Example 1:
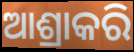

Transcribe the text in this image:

ଆଶ୍ରାକରି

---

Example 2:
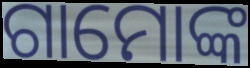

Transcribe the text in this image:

ଗାମୋଙ୍କ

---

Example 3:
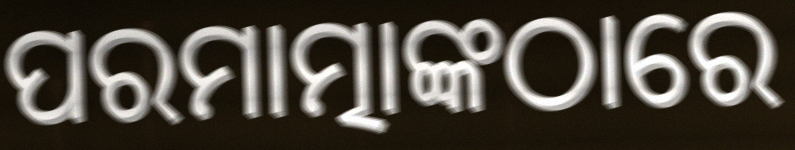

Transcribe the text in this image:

ପରମାତ୍ମାଙ୍କଠାରେ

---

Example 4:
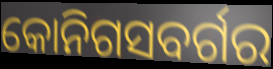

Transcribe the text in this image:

କୋନିଗସବର୍ଗର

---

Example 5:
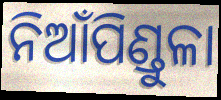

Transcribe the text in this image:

ନିଆଁପିଣ୍ଡୁଳା